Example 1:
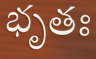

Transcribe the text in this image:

భృతః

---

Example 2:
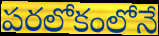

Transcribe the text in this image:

పరలోకంలోనే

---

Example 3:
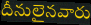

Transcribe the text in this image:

దీనులైనవారు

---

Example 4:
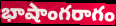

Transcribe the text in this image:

భాషాంగరాగం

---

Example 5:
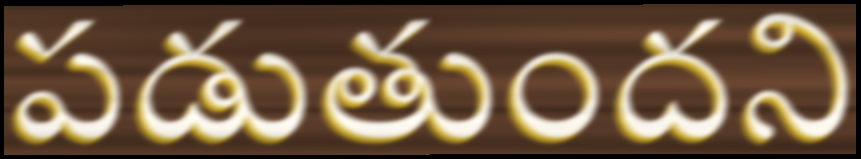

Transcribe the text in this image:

పడుతుందని